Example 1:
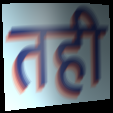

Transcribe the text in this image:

तही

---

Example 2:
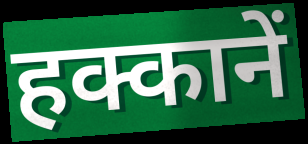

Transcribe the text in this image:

हक्कानें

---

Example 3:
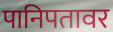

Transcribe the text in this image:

पानिपतावर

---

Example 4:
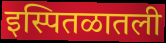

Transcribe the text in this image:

इस्पितळातली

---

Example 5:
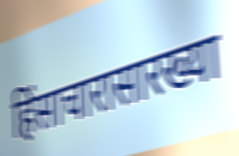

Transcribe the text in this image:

हिंसाचारासारख्या